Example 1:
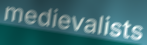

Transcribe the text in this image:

medievalists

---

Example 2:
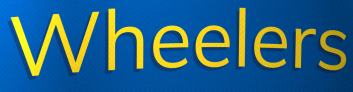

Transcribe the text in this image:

Wheelers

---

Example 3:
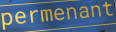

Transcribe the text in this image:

permenant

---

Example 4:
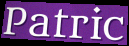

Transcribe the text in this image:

Patric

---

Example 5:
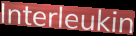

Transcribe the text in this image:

Interleukin